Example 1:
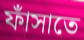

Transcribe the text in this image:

ফাঁসাতে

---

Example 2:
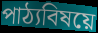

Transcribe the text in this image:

পাঠ্যবিষয়ে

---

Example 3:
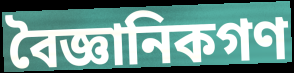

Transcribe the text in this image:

বৈজ্ঞানিকগণ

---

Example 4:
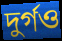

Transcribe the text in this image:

দুর্গও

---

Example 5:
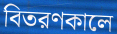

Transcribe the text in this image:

বিতরণকালে